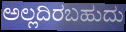
ಅಲ್ಲದಿರಬಹುದು